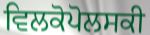
ਵਿਲਕੋਪੋਲਸਕੀ